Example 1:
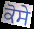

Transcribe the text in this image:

ਕੋਸੇ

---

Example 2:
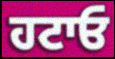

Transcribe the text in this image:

ਹਟਾਓ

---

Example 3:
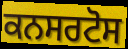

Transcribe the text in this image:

ਕਨਸਰਟੋਸ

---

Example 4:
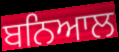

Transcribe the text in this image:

ਬਨਿਆਲ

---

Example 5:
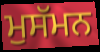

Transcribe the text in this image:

ਮੁਸੱਮਨ